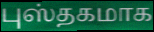
புஸ்தகமாக